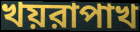
খয়রাপাখ